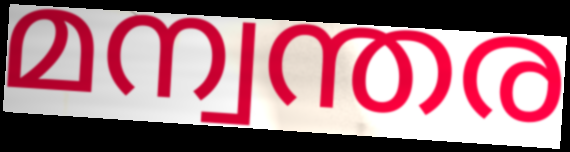
മന്വന്തര